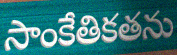
సాంకేతికతను